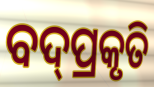
ବଦ୍‌ପ୍ରକୃତି